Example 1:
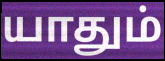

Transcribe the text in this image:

யாதும்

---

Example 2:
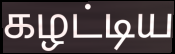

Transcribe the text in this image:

கழட்டிய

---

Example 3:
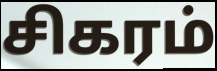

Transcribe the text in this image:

சிகரம்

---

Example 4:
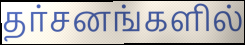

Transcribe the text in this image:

தர்சனங்களில்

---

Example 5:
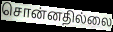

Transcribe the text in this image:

சொன்னதில்லை